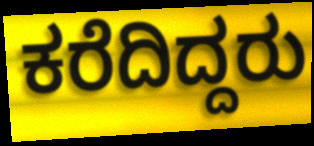
ಕರೆದಿದ್ದರು